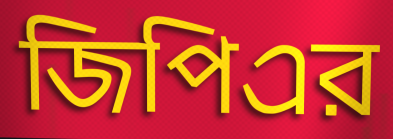
জিপিএর